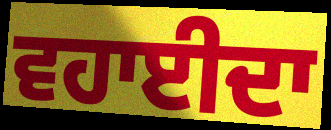
ਵਹਾਈਦਾ